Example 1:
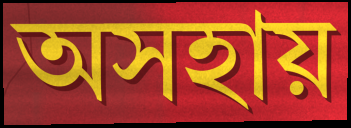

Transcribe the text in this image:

অসহায়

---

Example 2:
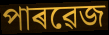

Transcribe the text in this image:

পাৰৱেজ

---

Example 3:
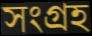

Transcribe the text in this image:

সংগ্ৰহ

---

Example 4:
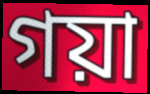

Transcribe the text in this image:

গয়া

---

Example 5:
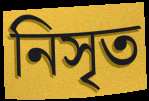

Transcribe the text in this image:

নিসৃত